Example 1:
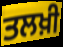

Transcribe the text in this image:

ਤਲਖ਼ੀ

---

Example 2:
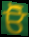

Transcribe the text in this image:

ਓੋ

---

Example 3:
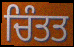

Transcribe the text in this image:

ਚਿੰਤਤ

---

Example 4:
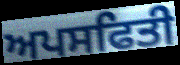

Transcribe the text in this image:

ਅਪਸਫਿਤੀ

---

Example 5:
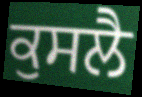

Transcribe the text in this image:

ਕੁਸਲੈ